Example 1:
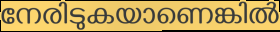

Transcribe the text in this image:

നേരിടുകയാണെങ്കിൽ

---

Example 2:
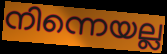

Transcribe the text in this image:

നിന്നെയല്ല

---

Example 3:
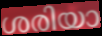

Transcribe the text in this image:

ശരിയാ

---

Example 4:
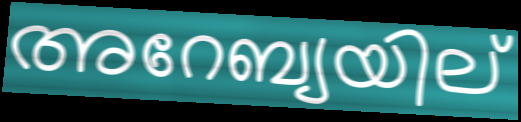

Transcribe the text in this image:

അറേബ്യയില്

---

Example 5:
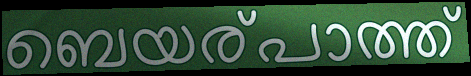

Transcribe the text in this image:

ബെയര്പാത്ത്